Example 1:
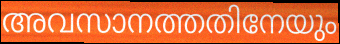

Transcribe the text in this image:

അവസാനത്തതിനേയും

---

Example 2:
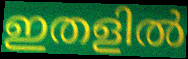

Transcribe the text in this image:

ഇതളിൽ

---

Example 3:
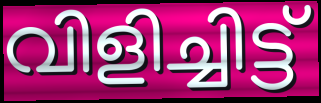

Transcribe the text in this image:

വിളിച്ചിട്ട്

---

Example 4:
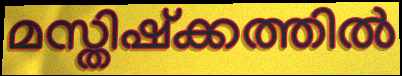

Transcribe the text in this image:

മസ്തിഷ്ക്കത്തിൽ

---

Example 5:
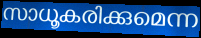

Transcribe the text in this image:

സാധൂകരിക്കുമെന്ന